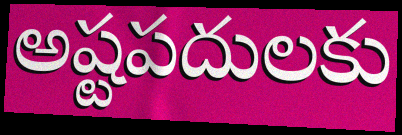
అష్టపదులకు